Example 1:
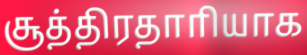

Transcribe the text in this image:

சூத்திரதாரியாக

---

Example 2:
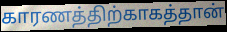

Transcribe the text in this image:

காரணத்திற்காகத்தான்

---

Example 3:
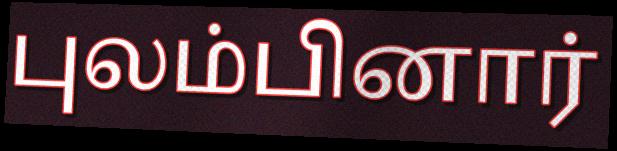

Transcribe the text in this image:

புலம்பினார்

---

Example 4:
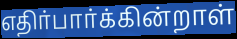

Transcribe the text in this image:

எதிர்பார்க்கின்றாள்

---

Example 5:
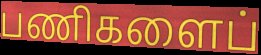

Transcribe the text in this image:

பணிகளைப்